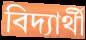
বিদ্যাৰ্থী